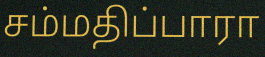
சம்மதிப்பாரா